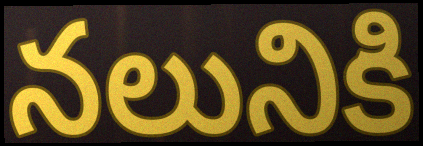
నలునికి